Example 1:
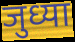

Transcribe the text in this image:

जुध्या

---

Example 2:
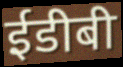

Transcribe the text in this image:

ईडीबी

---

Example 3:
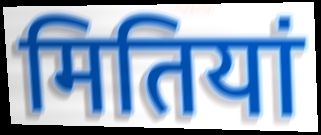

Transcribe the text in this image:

मितियां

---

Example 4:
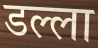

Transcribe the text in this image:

डल्ला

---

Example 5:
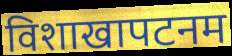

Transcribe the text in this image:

विशाखापटनम